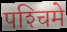
पश्चिमे